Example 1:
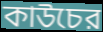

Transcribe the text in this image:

কাউচের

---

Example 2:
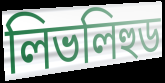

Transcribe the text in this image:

লিভলিহুড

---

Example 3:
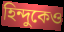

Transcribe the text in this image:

হিন্দুকেও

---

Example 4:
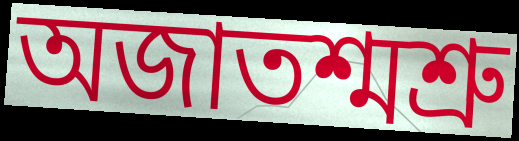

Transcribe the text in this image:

অজাতশ্মশ্রু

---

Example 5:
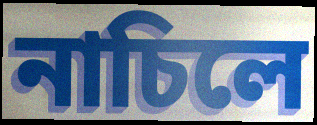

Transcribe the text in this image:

নাচিলে